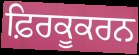
ਫ਼ਿਰਕੂਕਰਨ